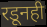
रडूनही